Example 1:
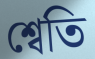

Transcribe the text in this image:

শ্বেতি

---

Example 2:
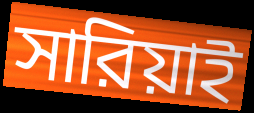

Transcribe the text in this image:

সারিয়াই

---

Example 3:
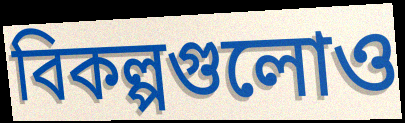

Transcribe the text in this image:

বিকল্পগুলোও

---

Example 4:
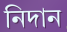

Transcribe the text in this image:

নিদান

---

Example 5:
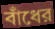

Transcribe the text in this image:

বাঁধের